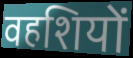
वहशियों